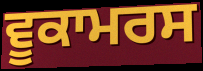
ਵੂਕਾਮਰਸ